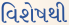
વિશેષથી